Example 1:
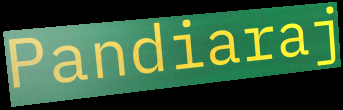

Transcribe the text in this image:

Pandiaraj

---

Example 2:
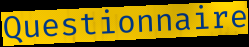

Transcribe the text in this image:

Questionnaire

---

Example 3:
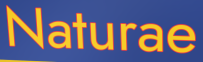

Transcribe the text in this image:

Naturae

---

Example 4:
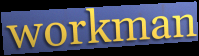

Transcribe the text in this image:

workman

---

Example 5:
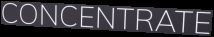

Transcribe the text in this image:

CONCENTRATE